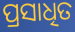
ପ୍ରସାଧିତ